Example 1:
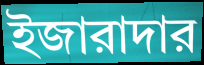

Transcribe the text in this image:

ইজারাদার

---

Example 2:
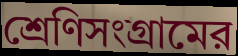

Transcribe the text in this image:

শ্রেণিসংগ্রামের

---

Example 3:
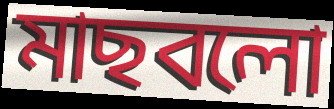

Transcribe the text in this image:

মাছবলো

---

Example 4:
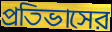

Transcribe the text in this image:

প্রতিভাসের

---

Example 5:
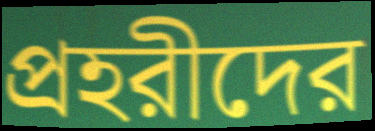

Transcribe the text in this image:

প্রহরীদের